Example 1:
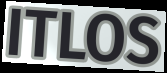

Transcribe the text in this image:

ITLOS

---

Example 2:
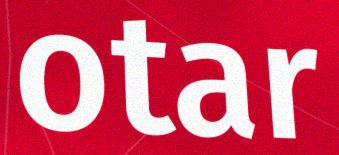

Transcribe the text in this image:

otar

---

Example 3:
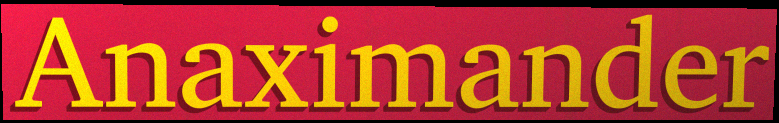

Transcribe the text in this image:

Anaximander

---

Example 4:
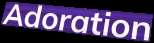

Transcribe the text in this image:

Adoration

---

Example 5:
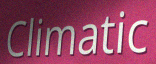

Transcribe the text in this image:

Climatic